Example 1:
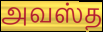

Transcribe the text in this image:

அவஸ்த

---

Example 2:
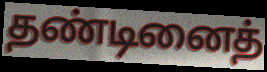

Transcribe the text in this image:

தண்டினைத்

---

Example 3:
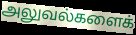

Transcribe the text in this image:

அலுவல்களைக்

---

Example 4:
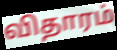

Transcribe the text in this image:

விதாரம்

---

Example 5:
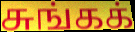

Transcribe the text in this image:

சுங்கக்